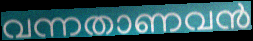
വന്നതാണവൻ